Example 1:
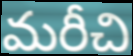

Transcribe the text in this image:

మరీచి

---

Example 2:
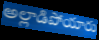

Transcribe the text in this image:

అల్లాడిపోయారు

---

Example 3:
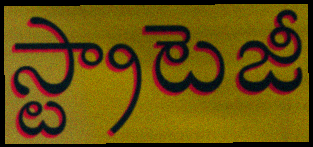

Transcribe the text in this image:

స్ట్రాటెజీ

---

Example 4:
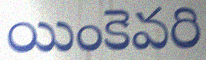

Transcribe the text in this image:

యింకెవరి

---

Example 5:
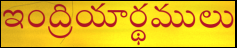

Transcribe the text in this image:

ఇంద్రియార్థములు